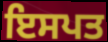
ਇਸਪਤ